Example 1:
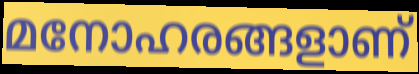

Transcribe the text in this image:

മനോഹരങ്ങളാണ്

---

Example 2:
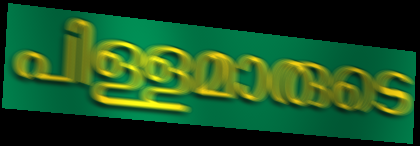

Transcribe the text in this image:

പിള്ളമാരുടെ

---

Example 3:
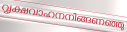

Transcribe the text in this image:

വൃക്ഷവാഹനനിങ്ങണഞ്ഞു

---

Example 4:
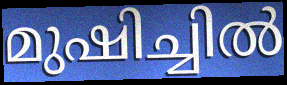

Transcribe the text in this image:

മുഷിച്ചിൽ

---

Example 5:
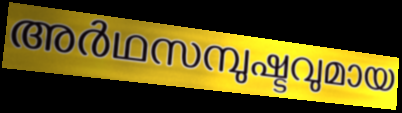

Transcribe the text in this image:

അർഥസമ്പുഷ്ടവുമായ